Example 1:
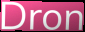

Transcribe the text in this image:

Dron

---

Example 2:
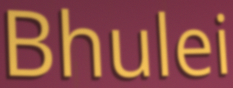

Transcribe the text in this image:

Bhulei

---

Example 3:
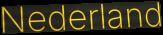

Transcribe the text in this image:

Nederland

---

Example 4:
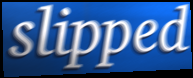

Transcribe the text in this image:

slipped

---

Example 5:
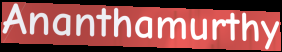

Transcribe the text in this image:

Ananthamurthy